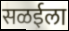
सळईला